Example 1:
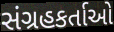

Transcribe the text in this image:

સંગ્રહકર્તાઓ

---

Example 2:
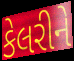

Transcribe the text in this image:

કેલરીને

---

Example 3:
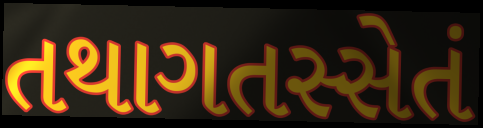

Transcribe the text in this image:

તથાગતસ્સેતં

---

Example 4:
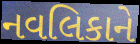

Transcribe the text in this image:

નવલિકાને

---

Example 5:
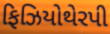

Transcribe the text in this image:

ફિઝિયોથેરપી